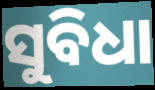
ସୁବିଧା